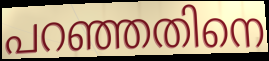
പറഞ്ഞതിനെ